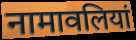
नामावलियां